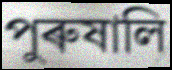
পুৰুষালি